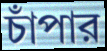
চাঁপার